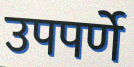
उपपर्णे